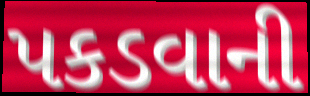
પકડવાની